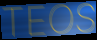
TEOS